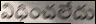
విధించలేదు